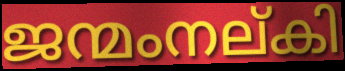
ജന്മംനല്കി